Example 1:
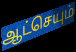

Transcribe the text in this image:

ஆட்செயும்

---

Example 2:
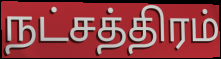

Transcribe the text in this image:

நட்சத்திரம்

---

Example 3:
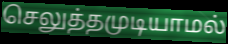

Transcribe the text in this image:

செலுத்தமுடியாமல்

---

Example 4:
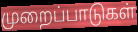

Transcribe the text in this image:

முறைப்பாடுகள்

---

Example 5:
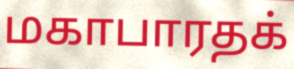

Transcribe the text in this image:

மகாபாரதக்